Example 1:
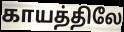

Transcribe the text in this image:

காயத்திலே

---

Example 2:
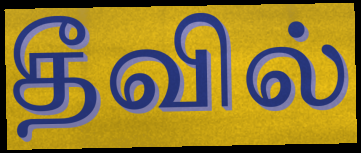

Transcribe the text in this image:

தீவில்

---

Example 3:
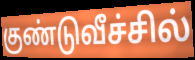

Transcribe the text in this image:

குண்டுவீச்சில்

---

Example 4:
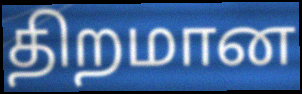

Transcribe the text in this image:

திறமான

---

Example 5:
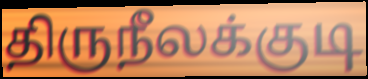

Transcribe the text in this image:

திருநீலக்குடி